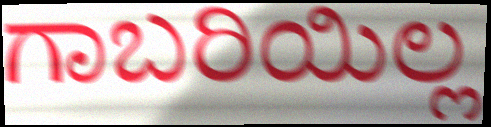
ಗಾಬರಿಯಿಲ್ಲ